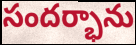
సందర్భాను